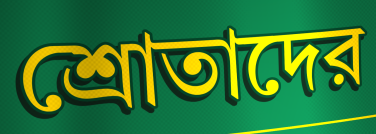
শ্রোতাদের